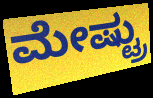
ಮೇಷ್ಟ್ರು